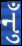
નુઁ